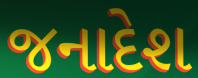
જનાદેશ